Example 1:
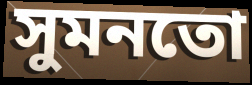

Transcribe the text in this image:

সুমনতো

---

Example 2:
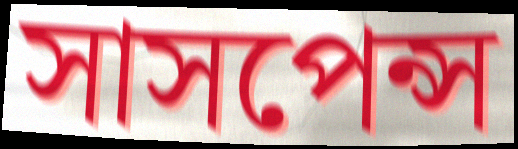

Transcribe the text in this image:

সাসপেন্স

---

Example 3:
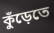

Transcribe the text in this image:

কুঁড়েতে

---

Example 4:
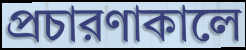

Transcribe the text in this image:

প্রচারণাকালে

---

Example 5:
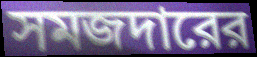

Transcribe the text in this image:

সমজদারের